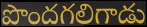
పొందగలిగాడు